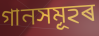
গানসমূহৰ